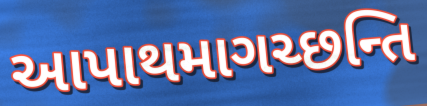
આપાથમાગચ્છન્તિ